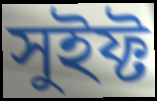
সুইফ্ট